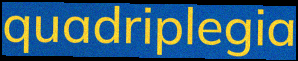
quadriplegia